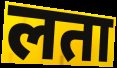
लता